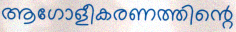
ആഗോളീകരണത്തിന്റെ